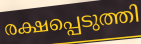
രക്ഷപ്പെടുത്തി